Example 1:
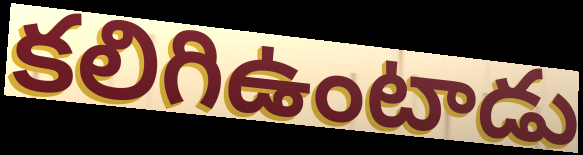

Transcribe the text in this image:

కలిగిఉంటాడు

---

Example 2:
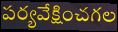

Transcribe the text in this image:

పర్యవేక్షించగల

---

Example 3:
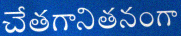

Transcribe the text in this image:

చేతగానితనంగా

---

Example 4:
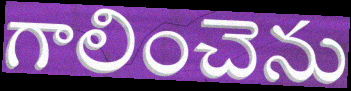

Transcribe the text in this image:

గాలించెను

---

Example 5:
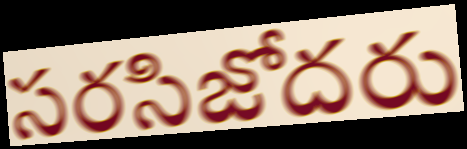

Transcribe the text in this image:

సరసిజోదరు